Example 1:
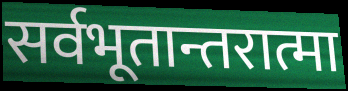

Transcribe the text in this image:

सर्वभूतान्तरात्मा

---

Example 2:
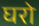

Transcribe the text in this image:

घरो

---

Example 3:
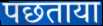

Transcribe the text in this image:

पछताया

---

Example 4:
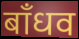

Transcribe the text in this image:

बाँधव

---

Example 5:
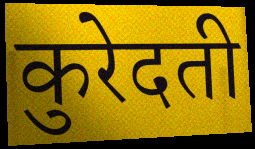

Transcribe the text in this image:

कुरेदती